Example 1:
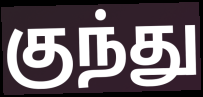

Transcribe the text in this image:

குந்து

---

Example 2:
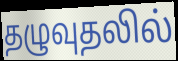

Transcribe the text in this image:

தழுவுதலில்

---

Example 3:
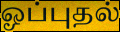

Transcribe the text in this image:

ஓப்புதல்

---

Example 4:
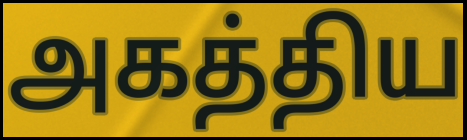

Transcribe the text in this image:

அகத்திய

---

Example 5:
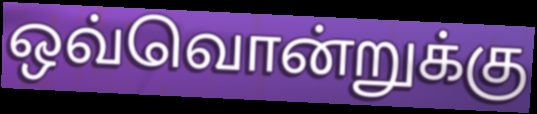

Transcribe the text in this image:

ஒவ்வொன்றுக்கு